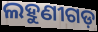
ଲହୁଣୀଗଡ଼